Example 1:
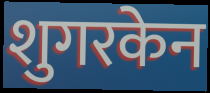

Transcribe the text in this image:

शुगरकेन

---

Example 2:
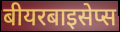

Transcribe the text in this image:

बीयरबाइसेप्स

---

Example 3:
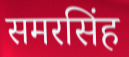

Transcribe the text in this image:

समरसिंह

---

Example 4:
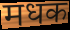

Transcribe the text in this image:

मधक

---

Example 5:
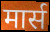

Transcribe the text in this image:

मार्स